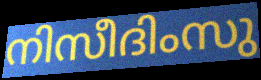
നിസീദിംസു